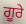
ਗੂਰੇ